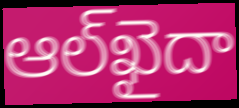
ఆల్‌ఖైదా